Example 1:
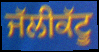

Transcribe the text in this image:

ਜੱਲੀਕੱਟੂ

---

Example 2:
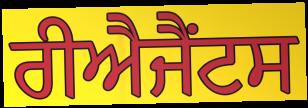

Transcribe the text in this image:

ਰੀਐਜੈਂਟਸ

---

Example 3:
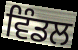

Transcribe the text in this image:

ਵਿੰਡਲ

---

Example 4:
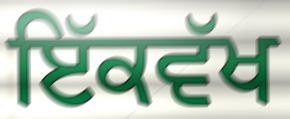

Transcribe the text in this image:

ਇੱਕਵੱਖ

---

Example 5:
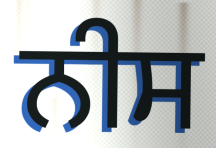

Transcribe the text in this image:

ਨੀਸ